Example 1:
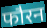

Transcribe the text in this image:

फौरन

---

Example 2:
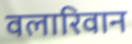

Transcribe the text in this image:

वलारिवान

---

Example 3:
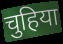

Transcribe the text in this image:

चुहिया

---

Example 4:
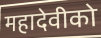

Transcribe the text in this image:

महादेवीको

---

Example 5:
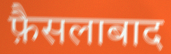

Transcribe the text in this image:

फ़ैसलाबाद